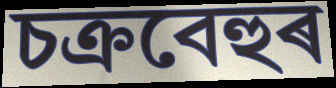
চক্ৰবেহুৰ